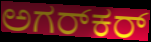
ಅಗರ್‌ಕರ್